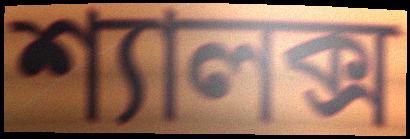
শ্যালক্স